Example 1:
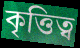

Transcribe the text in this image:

কৃত্তিত্ব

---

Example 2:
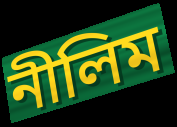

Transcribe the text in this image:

নীলিম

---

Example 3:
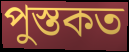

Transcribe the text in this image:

পুস্তকত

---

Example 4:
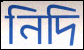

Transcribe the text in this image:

নিদি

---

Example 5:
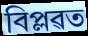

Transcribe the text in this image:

বিপ্লৱত